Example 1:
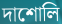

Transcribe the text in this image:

দাশোলি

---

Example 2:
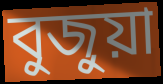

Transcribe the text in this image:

বুজুয়া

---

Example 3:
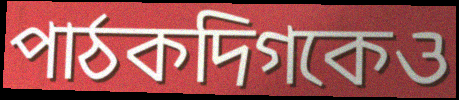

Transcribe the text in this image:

পাঠকদিগকেও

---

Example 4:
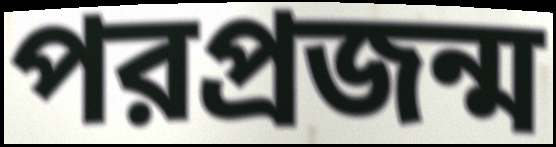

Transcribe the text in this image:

পরপ্রজন্ম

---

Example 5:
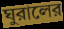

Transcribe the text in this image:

ঘুরালের